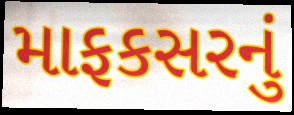
માફકસરનું